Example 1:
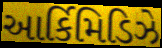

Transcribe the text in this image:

આર્કિમિડિઝે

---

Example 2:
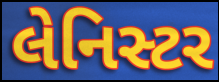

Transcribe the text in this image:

લેનિસ્ટર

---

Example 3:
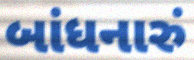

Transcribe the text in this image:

બાંધનારું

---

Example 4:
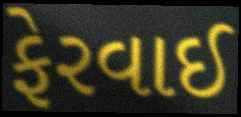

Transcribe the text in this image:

ફેરવાઈ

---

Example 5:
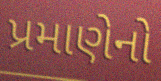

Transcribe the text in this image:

પ્રમાણેનો